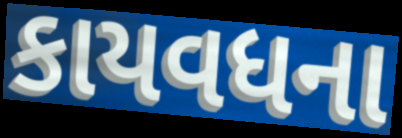
કાયવધના